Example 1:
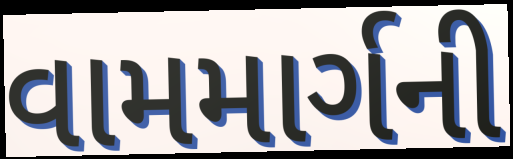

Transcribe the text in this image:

વામમાર્ગની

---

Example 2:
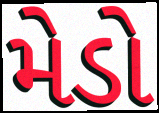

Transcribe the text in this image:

મેડો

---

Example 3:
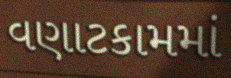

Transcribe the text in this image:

વણાટકામમાં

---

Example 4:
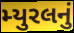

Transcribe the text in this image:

મ્યુરલનું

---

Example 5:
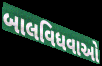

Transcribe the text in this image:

બાલવિધવાઓ